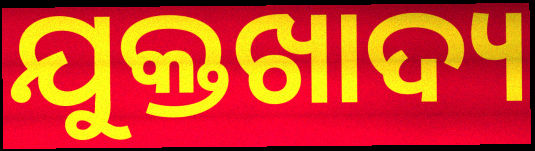
ଯୁକ୍ତଖାଦ୍ୟ